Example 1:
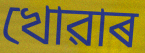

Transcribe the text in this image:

খোৱাৰ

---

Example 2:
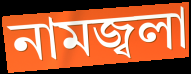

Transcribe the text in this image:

নামজ্বলা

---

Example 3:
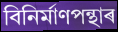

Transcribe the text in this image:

বিনিৰ্মাণপন্থাৰ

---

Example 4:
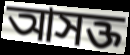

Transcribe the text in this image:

আসক্ত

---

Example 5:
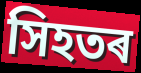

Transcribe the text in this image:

সিহতৰ